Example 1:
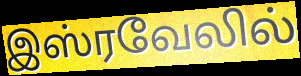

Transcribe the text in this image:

இஸ்ரவேலில்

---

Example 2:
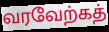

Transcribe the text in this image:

வரவேற்கத்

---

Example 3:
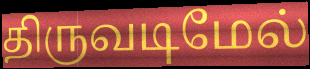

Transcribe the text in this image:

திருவடிமேல்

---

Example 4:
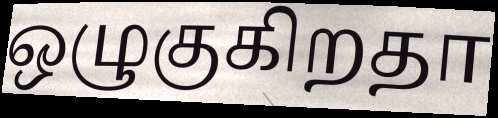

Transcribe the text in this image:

ஒழுகுகிறதா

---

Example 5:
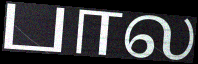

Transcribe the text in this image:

பால